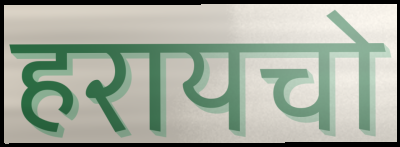
हरायचो